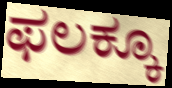
ಫಲಕ್ಕೂ